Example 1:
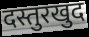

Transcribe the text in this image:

दस्तुरखुद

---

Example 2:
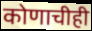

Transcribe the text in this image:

कोणाचीही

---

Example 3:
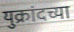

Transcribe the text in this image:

युक्रांदच्या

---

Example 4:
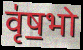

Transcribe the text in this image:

वृ॑ष॒भो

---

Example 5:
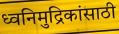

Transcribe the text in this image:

ध्वनिमुद्रिकांसाठी